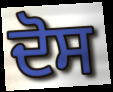
ਦੋਸ